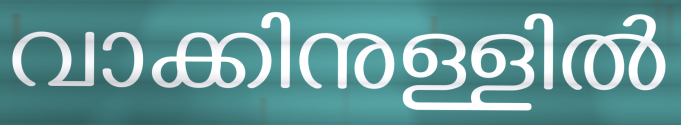
വാക്കിനുള്ളിൽ